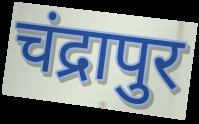
चंद्रापुर